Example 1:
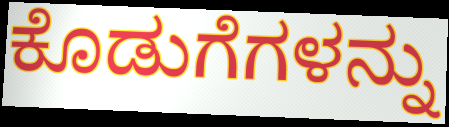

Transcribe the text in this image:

ಕೊಡುಗೆಗಳನ್ನು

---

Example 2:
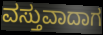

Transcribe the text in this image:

ವಸ್ತುವಾದಾಗ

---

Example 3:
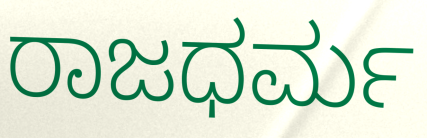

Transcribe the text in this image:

ರಾಜಧರ್ಮ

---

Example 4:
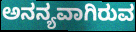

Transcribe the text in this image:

ಅನನ್ಯವಾಗಿರುವ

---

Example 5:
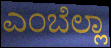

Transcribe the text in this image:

ಎಂಬೆಲ್ಲಾ